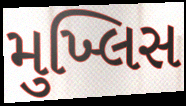
મુખ્લિસ